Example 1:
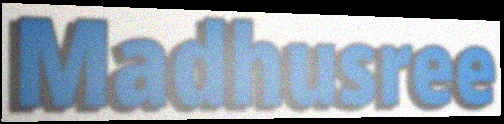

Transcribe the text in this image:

Madhusree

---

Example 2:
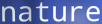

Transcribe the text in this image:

nature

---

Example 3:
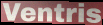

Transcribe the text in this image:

Ventris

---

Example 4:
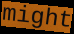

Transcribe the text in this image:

might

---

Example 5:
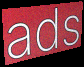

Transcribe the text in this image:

ads